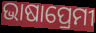
ଭାଷାପ୍ରେମୀ